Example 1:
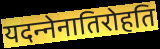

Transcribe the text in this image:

यदन्नेनातिरोहति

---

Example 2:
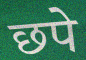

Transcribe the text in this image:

छपे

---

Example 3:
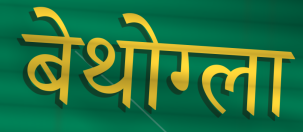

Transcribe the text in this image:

बेथोग्ला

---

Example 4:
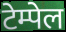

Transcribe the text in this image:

टेम्पेल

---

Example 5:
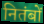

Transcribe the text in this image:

नितंबों